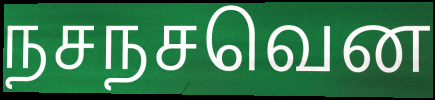
நசநசவென